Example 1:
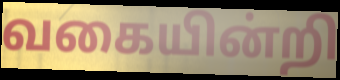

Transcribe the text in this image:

வகையின்றி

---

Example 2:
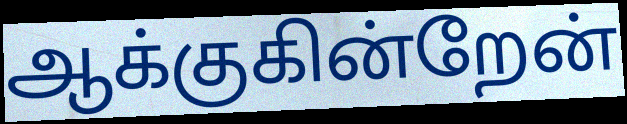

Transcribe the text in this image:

ஆக்குகின்றேன்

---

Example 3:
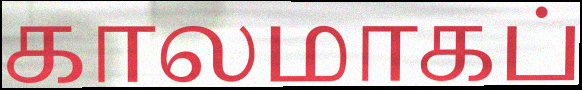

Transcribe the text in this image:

காலமாகப்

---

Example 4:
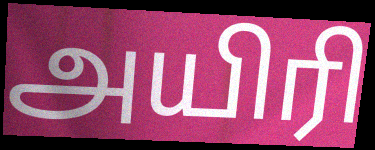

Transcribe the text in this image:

அயிரி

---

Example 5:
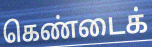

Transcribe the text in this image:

கெண்டைக்